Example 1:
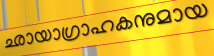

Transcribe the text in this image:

ഛായാഗ്രാഹകനുമായ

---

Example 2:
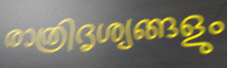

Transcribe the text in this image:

രാത്രിദൃശ്യങ്ങളും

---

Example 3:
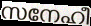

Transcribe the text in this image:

സനേഹീ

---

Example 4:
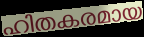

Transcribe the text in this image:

ഹിതകരമായ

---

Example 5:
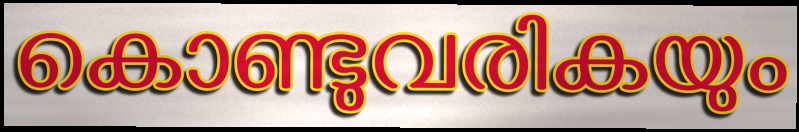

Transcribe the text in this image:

കൊണ്ടുവരികയും